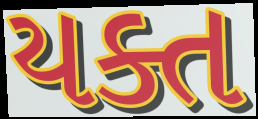
યક્ત